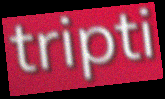
tripti